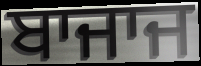
ਬਾਜਾਜ